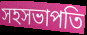
সহসভাপতি